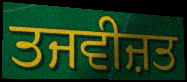
ਤਜਵੀਜ਼ਤ